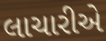
લાચારીએ